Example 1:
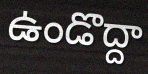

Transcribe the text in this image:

ఉండొద్దా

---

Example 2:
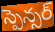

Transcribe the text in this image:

స్పెన్సర్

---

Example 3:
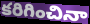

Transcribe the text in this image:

కరిగించినా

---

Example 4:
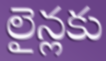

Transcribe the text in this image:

లైన్లకు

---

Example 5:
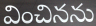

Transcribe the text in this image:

వించినను